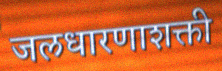
जलधारणाशक्ती